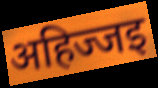
अहिज्जइ